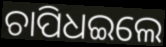
ଚାପିଧଇଲେ